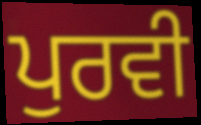
ਪੁਰਵੀ